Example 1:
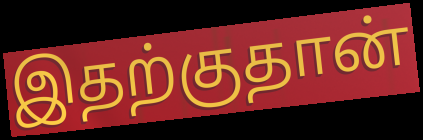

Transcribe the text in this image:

இதற்குதான்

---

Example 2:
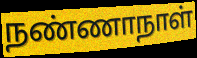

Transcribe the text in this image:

நண்ணாநாள்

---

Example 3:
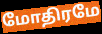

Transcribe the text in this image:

மோதிரமே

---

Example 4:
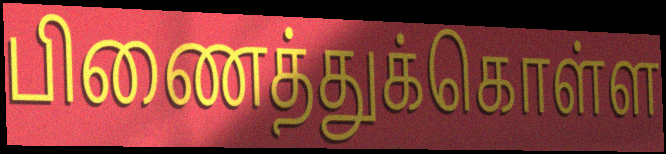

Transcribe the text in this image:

பிணைத்துக்கொள்ள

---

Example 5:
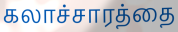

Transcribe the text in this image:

கலாச்சாரத்தை